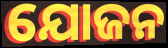
ଯୋଜନ